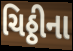
ચિઠ્ઠીના